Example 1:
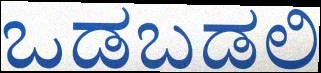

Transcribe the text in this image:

ಒಡಬಡಲಿ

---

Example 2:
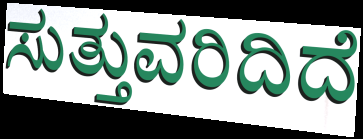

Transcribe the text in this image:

ಸುತ್ತುವರಿದಿದೆ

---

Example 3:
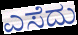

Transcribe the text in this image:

ಎಸೆದು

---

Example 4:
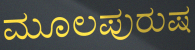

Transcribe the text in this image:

ಮೂಲಪುರುಷ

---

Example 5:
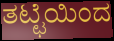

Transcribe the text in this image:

ತಟ್ಟೆಯಿಂದ